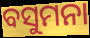
ବସୁମନା